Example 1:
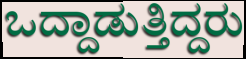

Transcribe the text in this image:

ಒದ್ದಾಡುತ್ತಿದ್ದರು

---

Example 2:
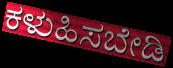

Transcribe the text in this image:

ಕಳುಹಿಸಬೇಡಿ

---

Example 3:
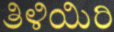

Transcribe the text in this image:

ತಿಳಿಯಿರಿ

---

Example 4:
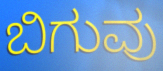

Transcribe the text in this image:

ಬಿಗುವು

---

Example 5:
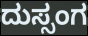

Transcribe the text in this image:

ದುಸ್ಸಂಗ